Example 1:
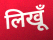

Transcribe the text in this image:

लिखूँ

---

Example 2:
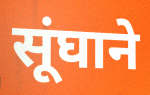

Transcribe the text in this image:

सूंघाने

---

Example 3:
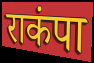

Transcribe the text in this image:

राकंपा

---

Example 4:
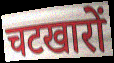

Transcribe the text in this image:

चटखारों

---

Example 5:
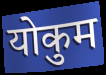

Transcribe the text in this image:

योकुम